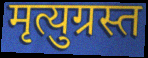
मृत्युग्रस्त